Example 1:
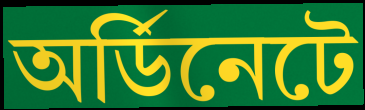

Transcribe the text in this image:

অর্ডিনেটে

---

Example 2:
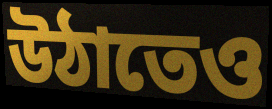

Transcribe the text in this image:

উঠাতেও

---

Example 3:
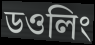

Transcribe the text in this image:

ডওলিং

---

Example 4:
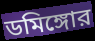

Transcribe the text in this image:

ডমিঙ্গোর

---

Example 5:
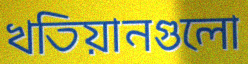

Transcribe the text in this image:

খতিয়ানগুলো